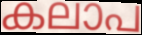
കലാപ